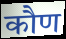
कौण